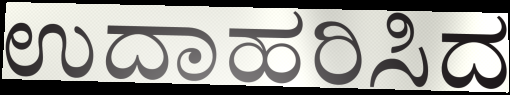
ಉದಾಹರಿಸಿದ